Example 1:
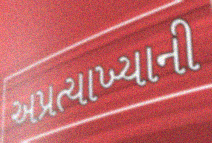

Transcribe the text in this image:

અપ્રત્યાખ્યાની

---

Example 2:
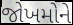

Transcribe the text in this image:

જોખમોને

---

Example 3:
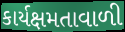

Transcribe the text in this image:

કાર્યક્ષમતાવાળી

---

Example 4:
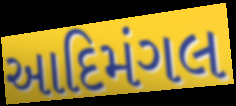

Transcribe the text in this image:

આદિમંગલ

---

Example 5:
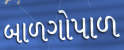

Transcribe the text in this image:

બાળગોપાળ